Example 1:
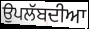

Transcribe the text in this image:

ਉਪਲੱਬਦੀਆ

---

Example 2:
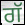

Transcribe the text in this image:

ਗੱ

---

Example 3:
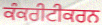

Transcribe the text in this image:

ਕੰਕਰੀਟੀਕਰਨ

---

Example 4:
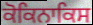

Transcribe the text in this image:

ਕੋਕਿਨਾਕਿਸ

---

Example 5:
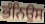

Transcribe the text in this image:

ਭੰਨਿਉਸ